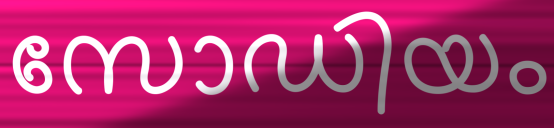
സോഡിയം